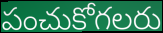
పంచుకోగలరు